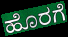
ಹೊರಗೆ